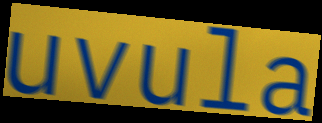
uvula